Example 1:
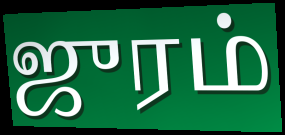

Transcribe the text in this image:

ஜுரம்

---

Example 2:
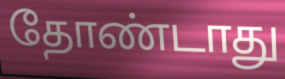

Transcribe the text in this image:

தோண்டாது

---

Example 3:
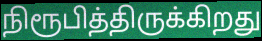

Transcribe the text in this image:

நிரூபித்திருக்கிறது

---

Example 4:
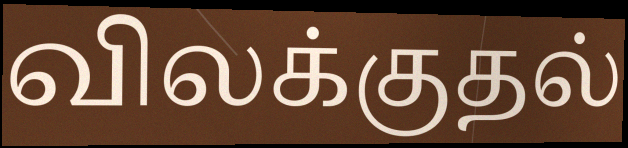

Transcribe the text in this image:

விலக்குதல்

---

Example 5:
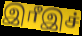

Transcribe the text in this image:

இரீஇச்